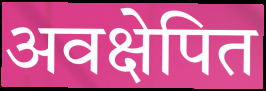
अवक्षेपित